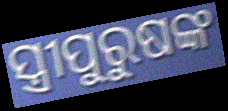
ସ୍ତ୍ରୀପୁରୁଷଙ୍କ